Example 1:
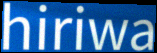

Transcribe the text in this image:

hiriwa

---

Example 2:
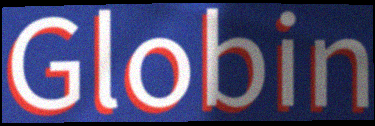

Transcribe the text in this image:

Globin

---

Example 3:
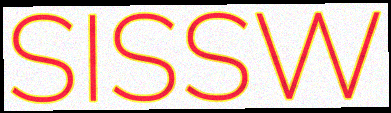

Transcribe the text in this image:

SISSW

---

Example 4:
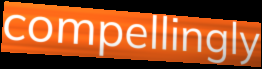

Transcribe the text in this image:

compellingly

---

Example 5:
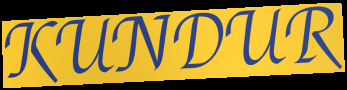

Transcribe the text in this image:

KUNDUR